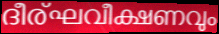
ദീര്ഘവീക്ഷണവും